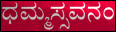
ಧಮ್ಮಸ್ಸವನಂ